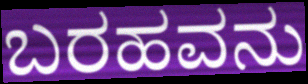
ಬರಹವನು